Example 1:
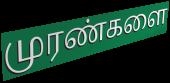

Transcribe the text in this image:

முரண்களை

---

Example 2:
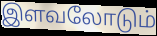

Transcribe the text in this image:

இளவலோடும்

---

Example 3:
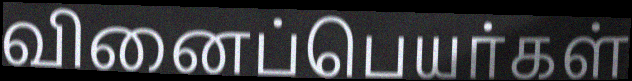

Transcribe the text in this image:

வினைப்பெயர்கள்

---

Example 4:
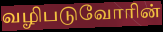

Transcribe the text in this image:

வழிபடுவோரின்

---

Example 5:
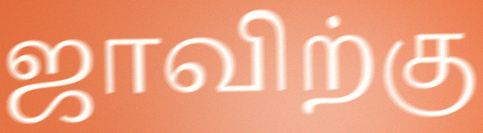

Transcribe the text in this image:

ஜாவிற்கு